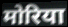
मोरिया